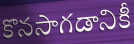
కొనసాగడానికీ